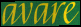
avare